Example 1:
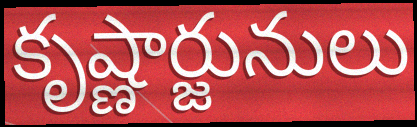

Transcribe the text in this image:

కృష్ణార్జునులు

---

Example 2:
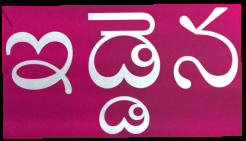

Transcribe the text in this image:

ఇడ్డెన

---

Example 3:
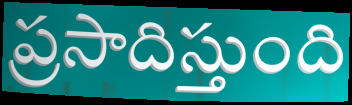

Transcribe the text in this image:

ప్రసాదిస్తుంది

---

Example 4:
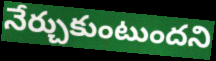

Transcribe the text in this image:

నేర్చుకుంటుందని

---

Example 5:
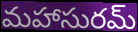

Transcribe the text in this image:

మహాసురమ్